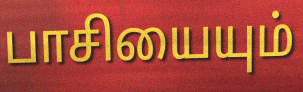
பாசியையும்